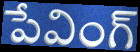
పేవింగ్